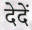
देदें